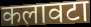
कलावटा